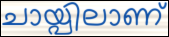
ചായ്പിലാണ്